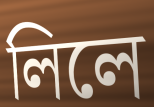
লিলে